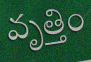
వృత్తిం